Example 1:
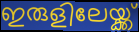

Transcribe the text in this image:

ഇരുളിലേയ്ക്ക്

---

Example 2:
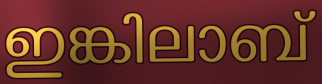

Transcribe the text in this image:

ഇങ്കിലാബ്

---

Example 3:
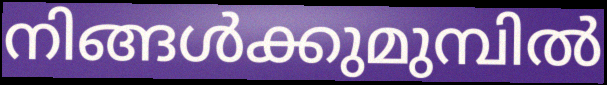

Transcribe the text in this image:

നിങ്ങൾക്കുമുമ്പിൽ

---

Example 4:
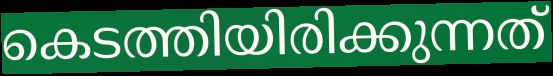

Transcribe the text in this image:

കെടത്തിയിരിക്കുന്നത്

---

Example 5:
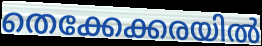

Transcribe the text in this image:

തെക്കേക്കരയിൽ